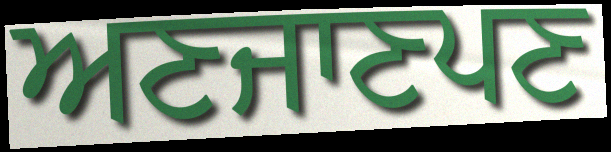
ਅਣਜਾਣਪਣ